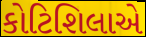
કોટિશિલાએ